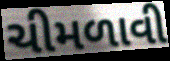
ચીમળાવી